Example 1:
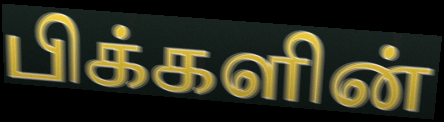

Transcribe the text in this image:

பிக்களின்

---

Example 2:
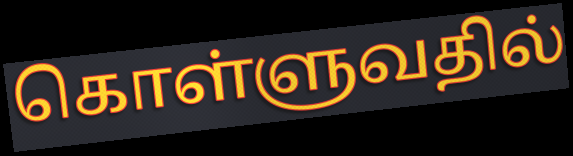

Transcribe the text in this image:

கொள்ளுவதில்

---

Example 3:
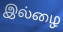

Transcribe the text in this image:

இல்ழை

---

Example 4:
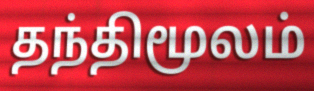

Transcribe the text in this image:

தந்திமூலம்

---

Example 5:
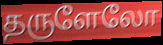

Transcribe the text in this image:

தருளேலோ